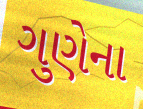
ગુણેના